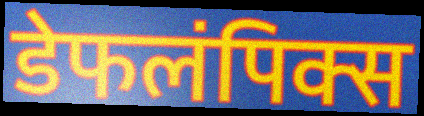
डेफलंपिक्स